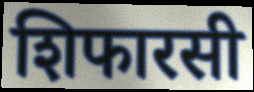
शिफारसी